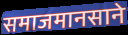
समाजमानसाने